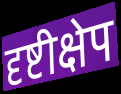
दृष्टीक्षेप